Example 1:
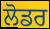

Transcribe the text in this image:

ਲੋਡਰ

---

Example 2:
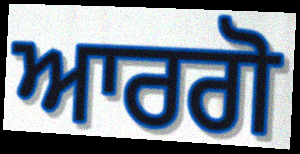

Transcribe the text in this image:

ਆਰਗੋ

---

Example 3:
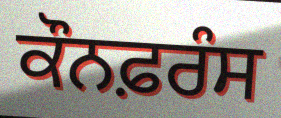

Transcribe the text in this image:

ਕੌਨਫ਼ਰੰਸ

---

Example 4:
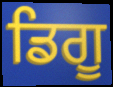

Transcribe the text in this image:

ਡਿਗੂ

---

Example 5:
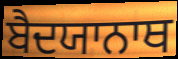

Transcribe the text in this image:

ਬੈਦਯਾਨਾਥ